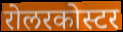
रोलरकोस्टर